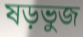
ষড়ভুজ